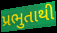
પ્રભુતાથી